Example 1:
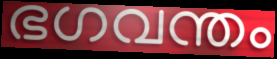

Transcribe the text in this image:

ഭഗവന്തം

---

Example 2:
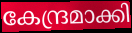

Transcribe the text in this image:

കേന്ദ്രമാക്കി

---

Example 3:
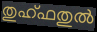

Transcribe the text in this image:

തുഹ്ഫതുൽ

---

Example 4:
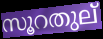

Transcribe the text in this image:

സൂറതുല്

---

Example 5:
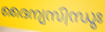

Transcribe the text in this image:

ദൈന്യസിന്ധുഃ